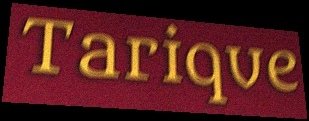
Tarique